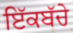
ਇੱਕਬੱਚੇ